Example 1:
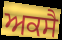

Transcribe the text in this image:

ਅਕਸੈ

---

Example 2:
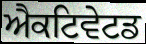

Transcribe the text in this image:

ਐਕਟਿਵੇਟਡ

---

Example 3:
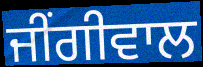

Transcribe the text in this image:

ਜੀਂਗੀਵਾਲ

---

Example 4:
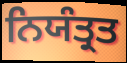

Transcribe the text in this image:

ਨਿਯੰਤ੍ਰਤ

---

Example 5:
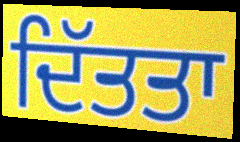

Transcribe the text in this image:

ਦਿੱਤਤਾ